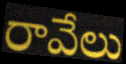
రావేలు